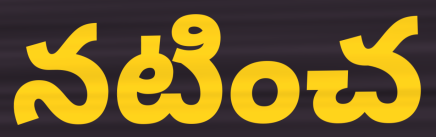
నటించ